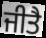
ਜੀਤੈ